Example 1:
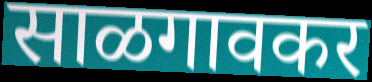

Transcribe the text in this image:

साळगावकर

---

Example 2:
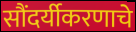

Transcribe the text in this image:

सौंदर्यीकरणाचे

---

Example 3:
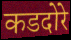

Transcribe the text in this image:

कडदोरे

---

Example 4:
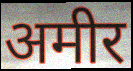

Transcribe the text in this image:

अमीर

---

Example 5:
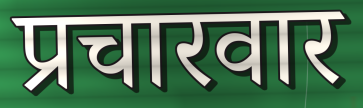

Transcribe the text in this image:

प्रचारवार